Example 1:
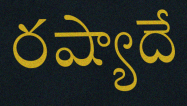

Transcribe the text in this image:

రష్యాదే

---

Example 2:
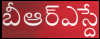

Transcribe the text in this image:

బీఆర్ఎస్దే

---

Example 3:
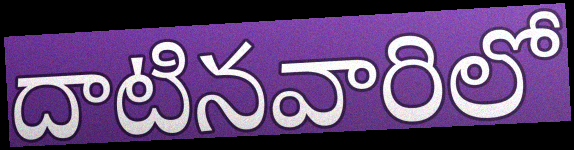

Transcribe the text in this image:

దాటినవారిలో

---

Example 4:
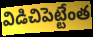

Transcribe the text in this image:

విడిచిపెట్టేంత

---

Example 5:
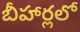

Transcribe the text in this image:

బీహార్లలో